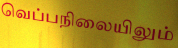
வெப்பநிலையிலும்